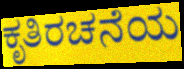
ಕೃತಿರಚನೆಯ